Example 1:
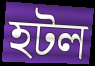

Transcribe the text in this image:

হটল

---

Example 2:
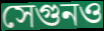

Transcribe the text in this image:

সেগুনও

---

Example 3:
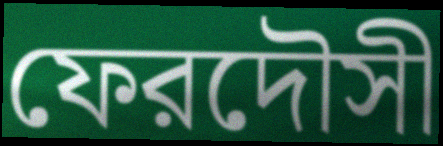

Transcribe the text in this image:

ফেরদৌসী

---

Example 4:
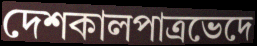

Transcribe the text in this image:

দেশকালপাত্রভেদে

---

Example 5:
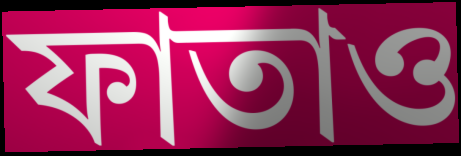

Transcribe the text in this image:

ফাতাও